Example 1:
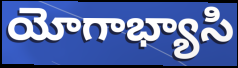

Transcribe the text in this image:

యోగాభ్యాసి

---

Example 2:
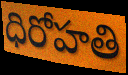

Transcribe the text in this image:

ధిరోహతి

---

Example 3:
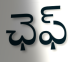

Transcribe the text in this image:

ఛెఫ్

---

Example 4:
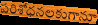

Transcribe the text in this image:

పరిశోధనలకుగానూ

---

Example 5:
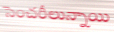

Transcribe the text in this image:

సెంచరీలున్నాయి